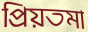
প্রিয়তমা